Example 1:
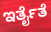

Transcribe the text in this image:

ಇರ್ತೈತೆ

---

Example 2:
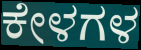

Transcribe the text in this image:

ಕೇಳಗಳ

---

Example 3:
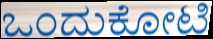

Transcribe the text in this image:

ಒಂದುಕೋಟಿ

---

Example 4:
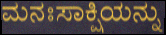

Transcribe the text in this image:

ಮನಃಸಾಕ್ಷಿಯನ್ನು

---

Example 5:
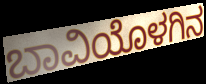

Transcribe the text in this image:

ಬಾವಿಯೊಳಗಿನ